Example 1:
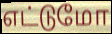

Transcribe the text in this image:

எட்டுமோ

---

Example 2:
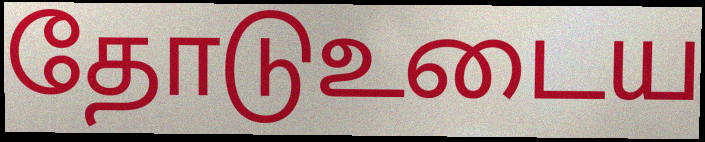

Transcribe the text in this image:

தோடுஉடைய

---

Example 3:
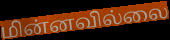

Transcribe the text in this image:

மின்னவில்லை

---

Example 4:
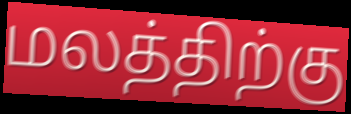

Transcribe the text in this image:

மலத்திற்கு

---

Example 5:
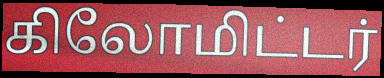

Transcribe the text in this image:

கிலோமிட்டர்